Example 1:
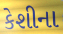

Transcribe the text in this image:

કેશીના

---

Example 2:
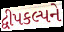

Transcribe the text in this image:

દ્વીપકલ્પને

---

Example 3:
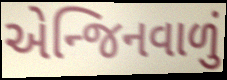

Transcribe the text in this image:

એન્જિનવાળું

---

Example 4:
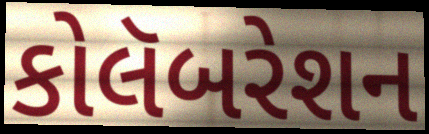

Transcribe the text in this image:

કોલૅબરેશન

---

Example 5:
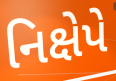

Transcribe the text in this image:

નિક્ષેપે